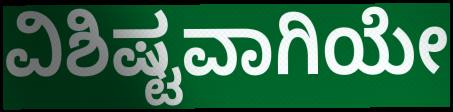
ವಿಶಿಷ್ಟವಾಗಿಯೇ